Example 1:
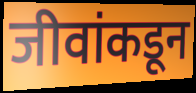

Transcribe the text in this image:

जीवांकडून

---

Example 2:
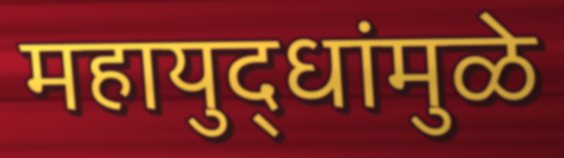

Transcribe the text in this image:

महायुद्धांमुळे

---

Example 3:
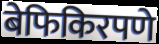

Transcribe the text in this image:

बेफिकिरपणे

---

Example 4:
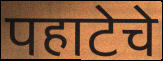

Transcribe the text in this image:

पहाटेचे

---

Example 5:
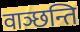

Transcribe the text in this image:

वाञ्छन्ति